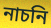
নাচনি